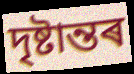
দৃষ্টান্তৰ